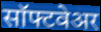
सॉफ्टवेअर